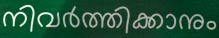
നിവർത്തിക്കാനും